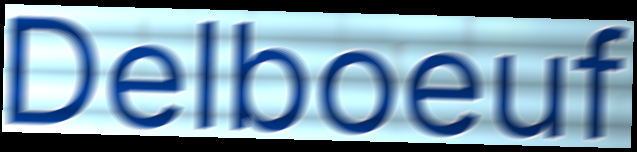
Delboeuf